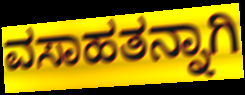
ವಸಾಹತನ್ನಾಗಿ